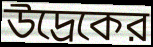
উদ্রেকের